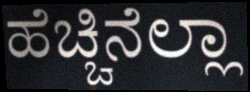
ಹೆಚ್ಚಿನೆಲ್ಲಾ